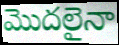
మొదలైనా